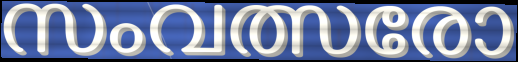
സംവത്സരോ